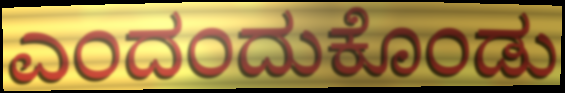
ಎಂದಂದುಕೊಂಡು